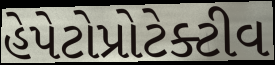
હેપેટોપ્રોટેક્ટીવ